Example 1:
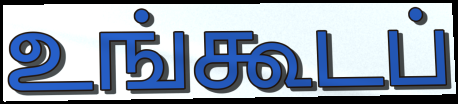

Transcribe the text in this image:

உங்கூடப்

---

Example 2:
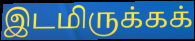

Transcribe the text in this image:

இடமிருக்கக்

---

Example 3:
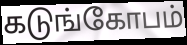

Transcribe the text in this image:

கடுங்கோபம்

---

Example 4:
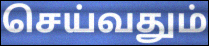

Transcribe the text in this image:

செய்வதும்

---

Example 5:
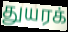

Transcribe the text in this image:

துயரக்